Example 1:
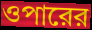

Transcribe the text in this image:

ওপারের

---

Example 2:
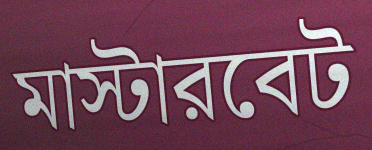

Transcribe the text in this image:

মাস্টারবেট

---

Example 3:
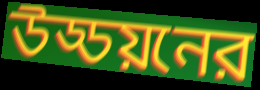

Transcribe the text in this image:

উড্ডয়নের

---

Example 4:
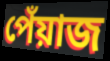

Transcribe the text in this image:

পেঁয়াজ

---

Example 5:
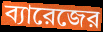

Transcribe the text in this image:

ব্যারেজের